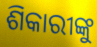
ଶିକାରୀଙ୍କୁ